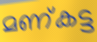
മണ്കട്ട